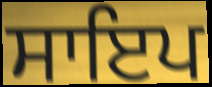
ਸਾਇਪ